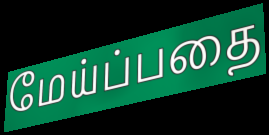
மேய்ப்பதை